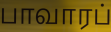
பாவாரப்